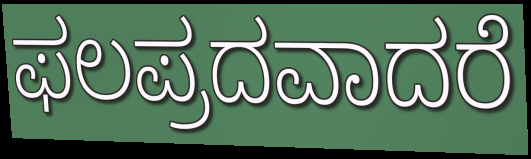
ಫಲಪ್ರದವಾದರೆ